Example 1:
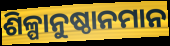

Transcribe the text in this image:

ଶିଳ୍ପାନୁଷ୍ଠାନମାନ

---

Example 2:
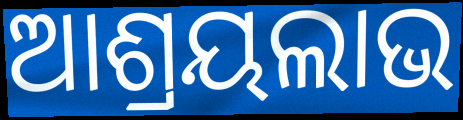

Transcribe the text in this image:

ଆଶ୍ରୟଲାଭ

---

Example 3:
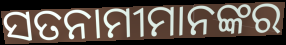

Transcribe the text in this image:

ସତନାମୀମାନଙ୍କର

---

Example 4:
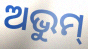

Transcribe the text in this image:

ଅଭୁମ୍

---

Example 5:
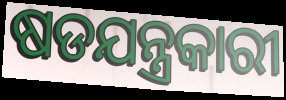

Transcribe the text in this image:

ଷଡଯନ୍ତ୍ରକାରୀ